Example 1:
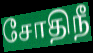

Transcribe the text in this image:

சோதிநீ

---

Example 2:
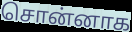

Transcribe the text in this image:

சொன்னாக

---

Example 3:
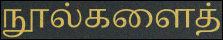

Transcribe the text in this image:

நூல்களைத்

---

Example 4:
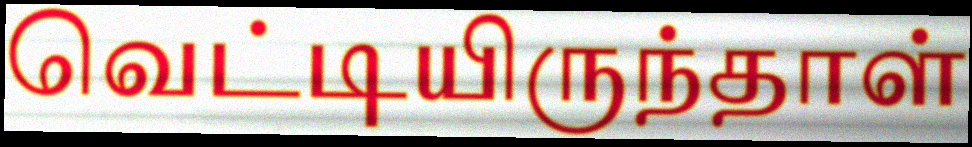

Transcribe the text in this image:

வெட்டியிருந்தாள்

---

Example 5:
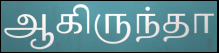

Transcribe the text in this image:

ஆகிருந்தா